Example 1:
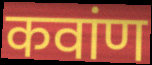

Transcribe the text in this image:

कवांण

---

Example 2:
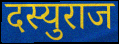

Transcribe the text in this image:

दस्युराज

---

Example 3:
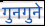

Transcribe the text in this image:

गुनगुने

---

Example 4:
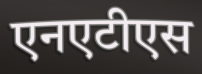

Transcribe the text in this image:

एनएटीएस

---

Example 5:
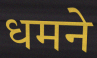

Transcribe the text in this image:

धमने